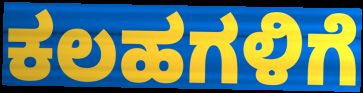
ಕಲಹಗಳಿಗೆ